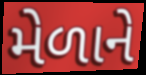
મેળાને